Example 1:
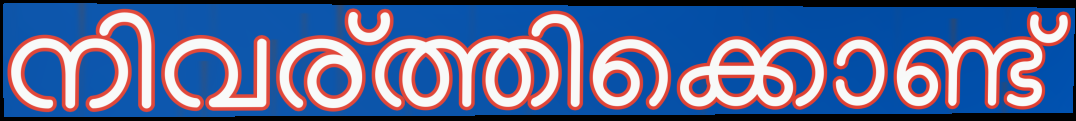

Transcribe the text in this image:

നിവര്ത്തിക്കൊണ്ട്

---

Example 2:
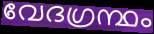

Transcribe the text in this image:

വേദഗ്രന്ഥം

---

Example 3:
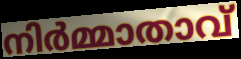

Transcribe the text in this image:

നിർമ്മാതാവ്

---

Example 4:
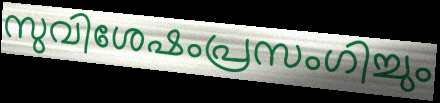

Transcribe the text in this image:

സുവിശേഷംപ്രസംഗിച്ചും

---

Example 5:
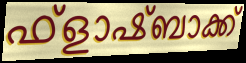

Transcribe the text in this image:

ഫ്ളാഷ്ബാക്ക്